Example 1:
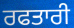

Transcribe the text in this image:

ਰਫਤਾਰੀ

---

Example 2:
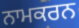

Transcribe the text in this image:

ਨਾਮਕਰਨ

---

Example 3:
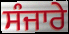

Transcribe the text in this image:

ਸੰਜਾਰੇ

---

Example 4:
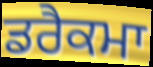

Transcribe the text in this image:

ਡਰੈਕਮਾ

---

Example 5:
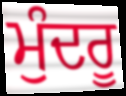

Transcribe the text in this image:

ਮੁੰਦਰੂ